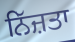
ਨਿੱਜ਼ਤਾ